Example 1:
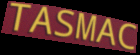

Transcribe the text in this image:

TASMAC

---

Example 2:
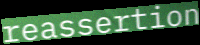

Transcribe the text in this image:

reassertion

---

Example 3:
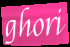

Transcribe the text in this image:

ghori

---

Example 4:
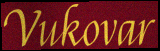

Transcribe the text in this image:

Vukovar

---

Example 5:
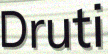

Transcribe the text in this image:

Druti